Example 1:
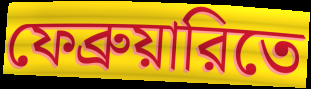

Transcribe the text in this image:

ফেব্রুয়ারিতে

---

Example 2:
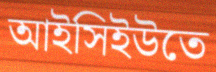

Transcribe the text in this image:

আইসিইউতে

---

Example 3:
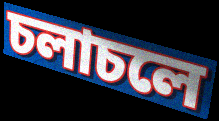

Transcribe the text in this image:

চলাচলে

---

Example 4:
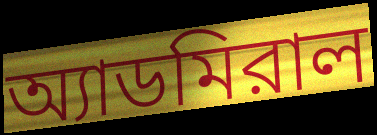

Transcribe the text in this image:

অ্যাডমিরাল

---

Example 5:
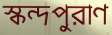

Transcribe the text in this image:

স্কন্দপুরাণ